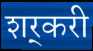
शर्करी